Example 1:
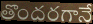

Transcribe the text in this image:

తొందరగానే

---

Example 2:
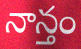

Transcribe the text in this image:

నాన్తం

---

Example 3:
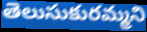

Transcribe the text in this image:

తెలుసుకురమ్మని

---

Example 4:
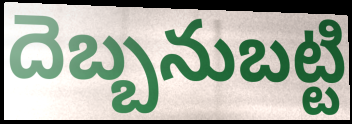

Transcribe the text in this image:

దెబ్బనుబట్టి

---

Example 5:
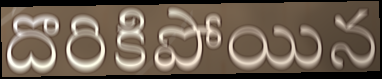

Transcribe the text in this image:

దొరికిపోయిన